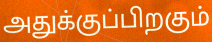
அதுக்குப்பிறகும்